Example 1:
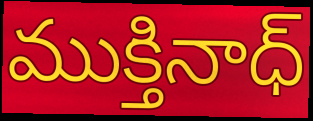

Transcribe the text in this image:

ముక్తినాధ్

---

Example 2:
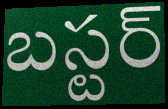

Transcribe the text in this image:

బస్టర్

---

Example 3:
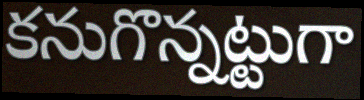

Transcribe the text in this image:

కనుగొన్నట్టుగా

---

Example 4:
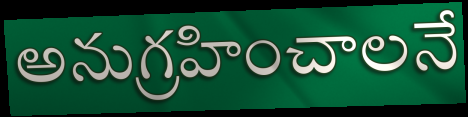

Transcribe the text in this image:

అనుగ్రహించాలనే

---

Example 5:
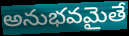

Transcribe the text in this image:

అనుభవమైతే